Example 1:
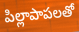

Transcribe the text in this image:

పిల్లాపాపలతో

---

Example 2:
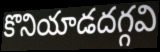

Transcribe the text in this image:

కొనియాడదగ్గవి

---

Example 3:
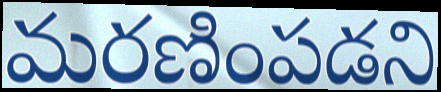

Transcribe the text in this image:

మరణింపడని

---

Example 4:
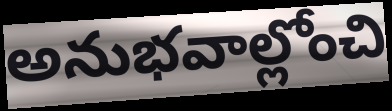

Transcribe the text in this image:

అనుభవాల్లోంచి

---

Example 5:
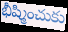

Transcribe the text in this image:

భీష్మించుకు